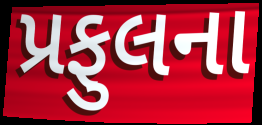
પ્રફુલના